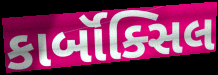
કાર્બૉક્સિલ